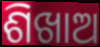
ଶିଖାଅ